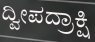
ದ್ವೀಪದ್ರಾಕ್ಷಿ